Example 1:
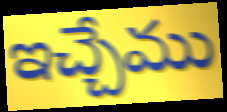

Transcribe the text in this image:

ఇచ్చేము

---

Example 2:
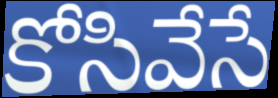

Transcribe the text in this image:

కోసివేసే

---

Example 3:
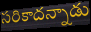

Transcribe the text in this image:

సరికాదన్నాడు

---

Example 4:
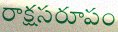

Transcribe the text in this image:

రాక్షసరూపం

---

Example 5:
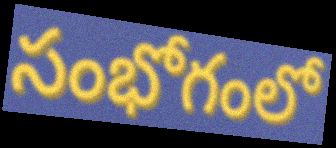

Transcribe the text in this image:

సంభోగంలో